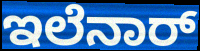
ಇಲೆನಾರ್